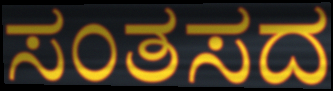
ಸಂತಸದ